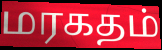
மரகதம்